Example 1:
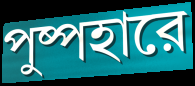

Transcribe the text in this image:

পুষ্পহারে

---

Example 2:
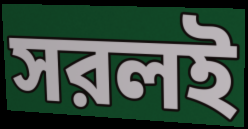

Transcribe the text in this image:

সরলই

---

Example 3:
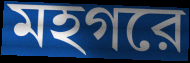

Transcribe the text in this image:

মহগরে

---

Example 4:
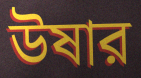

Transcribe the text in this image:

উষার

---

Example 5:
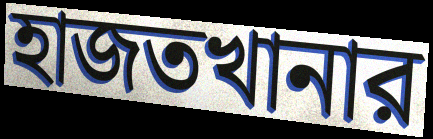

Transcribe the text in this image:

হাজতখানার